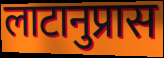
लाटानुप्रास